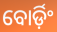
ବୋର୍ଡ଼ିଂ